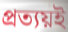
প্রত্যয়ই